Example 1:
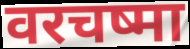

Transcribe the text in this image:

वरचष्मा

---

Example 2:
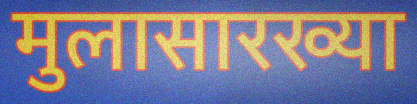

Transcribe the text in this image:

मुलासारख्या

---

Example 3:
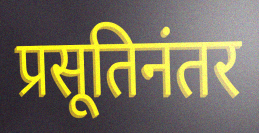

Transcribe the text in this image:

प्रसूतिनंतर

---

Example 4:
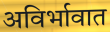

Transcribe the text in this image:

अविर्भावात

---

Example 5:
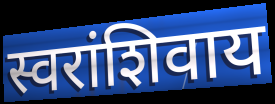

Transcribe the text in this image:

स्वरांशिवाय